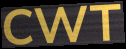
CWT